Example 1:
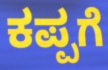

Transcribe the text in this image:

ಕಪ್ಪಗೆ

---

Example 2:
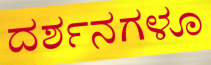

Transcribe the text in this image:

ದರ್ಶನಗಳೂ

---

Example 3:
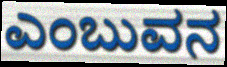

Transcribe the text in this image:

ಎಂಬುವನ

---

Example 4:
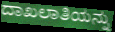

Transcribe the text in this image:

ದಾಖಲಾತಿಯನ್ನು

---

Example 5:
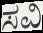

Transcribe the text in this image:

ಸವಿ